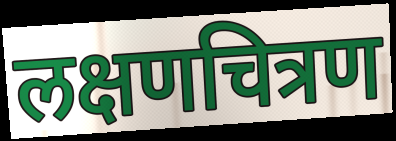
लक्षणचित्रण